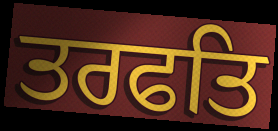
ਤਰਫਤਿ